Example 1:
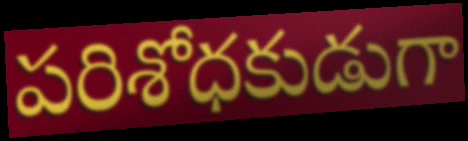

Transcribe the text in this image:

పరిశోధకుడుగా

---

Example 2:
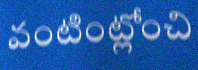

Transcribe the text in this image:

వంటింట్లోంచి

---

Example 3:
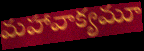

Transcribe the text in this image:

మహావాక్యమూ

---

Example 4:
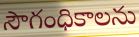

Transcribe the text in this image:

సౌగంధికాలను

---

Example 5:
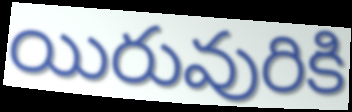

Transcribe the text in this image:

యిరువురికి